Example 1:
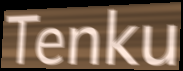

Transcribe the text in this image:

Tenku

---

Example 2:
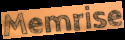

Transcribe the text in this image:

Memrise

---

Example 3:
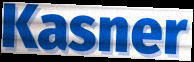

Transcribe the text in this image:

Kasner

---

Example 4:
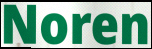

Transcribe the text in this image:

Noren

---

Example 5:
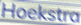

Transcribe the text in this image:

Hoekstra